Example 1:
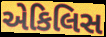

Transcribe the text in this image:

એકિલિસ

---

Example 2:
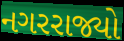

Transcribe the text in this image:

નગરરાજ્યો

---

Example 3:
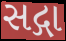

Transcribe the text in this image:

સદ્ગા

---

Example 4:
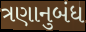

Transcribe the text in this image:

ત્રણાનુબંધ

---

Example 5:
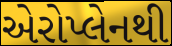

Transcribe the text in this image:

એરોપ્લેનથી